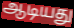
ஆடியது